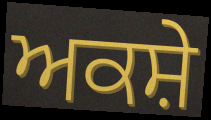
ਅਕਸ਼ੇ